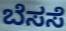
ಬೆಸಸೆ